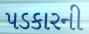
પડકારની